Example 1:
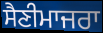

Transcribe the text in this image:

ਸੈਣੀਮਾਜਰਾ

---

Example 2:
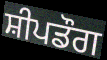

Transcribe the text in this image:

ਸ਼ੀਪਡੌਗ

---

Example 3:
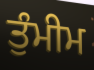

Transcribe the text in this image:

ਤੁੰਮੀਮ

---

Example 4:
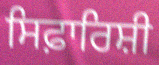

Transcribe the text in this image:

ਸਿਫ਼ਾਰਿਸ਼ੀ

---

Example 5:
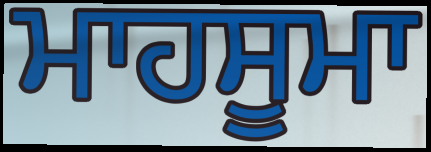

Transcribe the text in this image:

ਮਾਹਸੂਮਾ